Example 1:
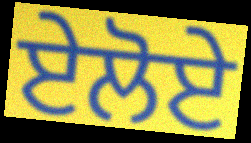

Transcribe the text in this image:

ਏਲੋਏ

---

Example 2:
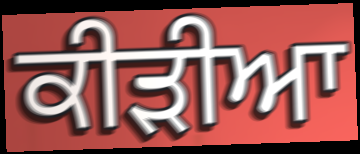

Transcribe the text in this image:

ਕੀੜੀਆ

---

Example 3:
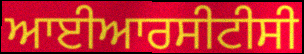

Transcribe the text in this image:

ਆਈਆਰਸੀਟੀਸੀ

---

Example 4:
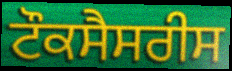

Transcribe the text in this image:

ਟੌਕਸੈਸਰੀਸ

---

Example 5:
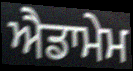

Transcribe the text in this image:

ਐਡਾਮੇਮ